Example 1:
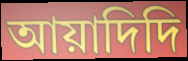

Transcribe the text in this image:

আয়াদিদি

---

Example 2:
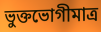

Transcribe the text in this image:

ভুক্তভোগীমাত্র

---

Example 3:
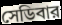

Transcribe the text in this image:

সেডিবার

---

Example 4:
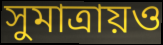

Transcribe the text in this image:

সুমাত্রায়ও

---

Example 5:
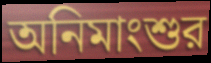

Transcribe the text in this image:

অনিমাংশুর